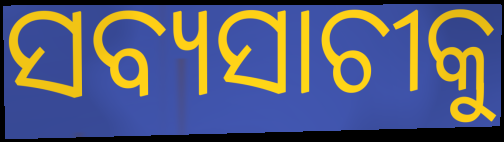
ସବ୍ୟସାଚୀକୁ